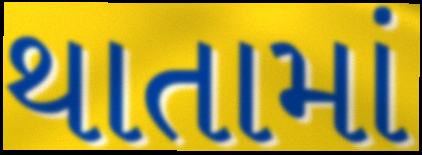
થાતામાં